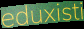
eduxisti